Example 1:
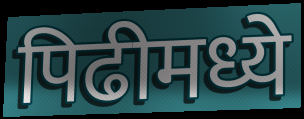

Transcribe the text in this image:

पिढीमध्ये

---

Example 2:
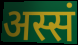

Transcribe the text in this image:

अस्सं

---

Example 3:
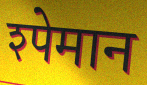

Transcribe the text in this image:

श्पेमान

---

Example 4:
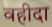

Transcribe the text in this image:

वहीदा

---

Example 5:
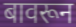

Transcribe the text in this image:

बावरून